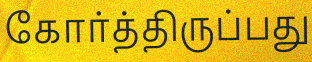
கோர்த்திருப்பது